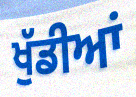
ਖੁੱਡੀਆਂ